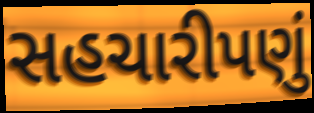
સહચારીપણું